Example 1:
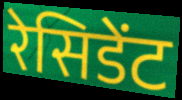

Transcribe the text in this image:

रेसिडेंट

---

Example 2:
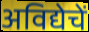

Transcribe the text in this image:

अविद्येचें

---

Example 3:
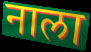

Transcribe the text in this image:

नाला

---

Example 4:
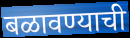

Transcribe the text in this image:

बळावण्याची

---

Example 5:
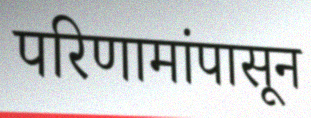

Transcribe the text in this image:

परिणामांपासून